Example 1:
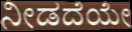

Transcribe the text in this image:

ನೀಡದೆಯೇ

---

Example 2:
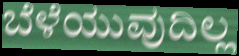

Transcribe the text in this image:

ಬೆಳೆಯುವುದಿಲ್ಲ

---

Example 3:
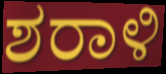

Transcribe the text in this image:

ಶರಾಳಿ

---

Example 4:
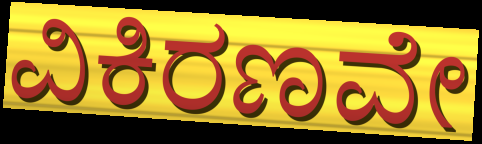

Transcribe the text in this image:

ವಿಕಿರಣವೇ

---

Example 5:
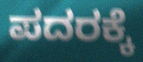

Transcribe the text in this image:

ಪದರಕ್ಕೆ